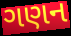
ગણન